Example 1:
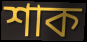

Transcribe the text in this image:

শাক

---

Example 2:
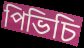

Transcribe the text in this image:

পিভিচি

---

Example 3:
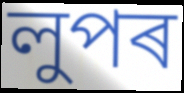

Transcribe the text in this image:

লুপৰ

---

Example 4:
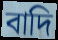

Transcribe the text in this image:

বাদি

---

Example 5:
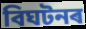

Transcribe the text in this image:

বিঘটনৰ